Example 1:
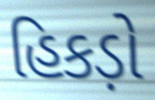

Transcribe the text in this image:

હિકડ઼ો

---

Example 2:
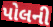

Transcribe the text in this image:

પોલની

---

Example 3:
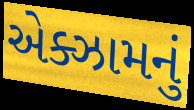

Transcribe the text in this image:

એક્ઝામનું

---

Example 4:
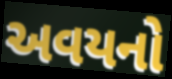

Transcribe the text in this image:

અવયનો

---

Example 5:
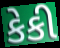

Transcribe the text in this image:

કેકી